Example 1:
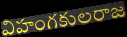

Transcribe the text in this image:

విహంగకులరాజ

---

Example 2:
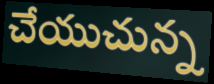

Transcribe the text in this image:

చేయుచున్న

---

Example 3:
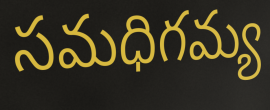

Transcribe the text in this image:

సమధిగమ్య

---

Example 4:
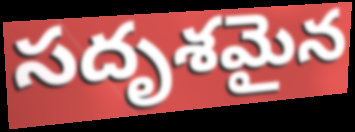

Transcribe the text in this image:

సదృశమైన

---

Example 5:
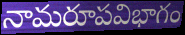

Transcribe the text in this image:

నామరూపవిభాగం